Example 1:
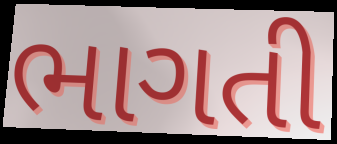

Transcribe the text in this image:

ભાગતી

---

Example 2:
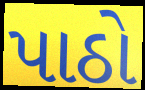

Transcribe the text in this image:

પાઠો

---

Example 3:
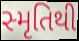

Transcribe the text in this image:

સ્મૃતિથી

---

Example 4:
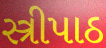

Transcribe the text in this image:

સ્ત્રીપાઠ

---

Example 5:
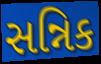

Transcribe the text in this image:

સન્નિક